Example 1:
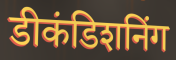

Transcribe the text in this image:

डीकंडिशनिंग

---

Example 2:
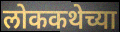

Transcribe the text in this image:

लोककथेच्या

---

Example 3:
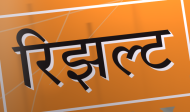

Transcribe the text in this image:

रिझल्ट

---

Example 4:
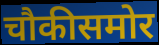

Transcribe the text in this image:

चौकीसमोर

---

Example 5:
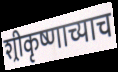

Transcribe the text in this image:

श्रीकृष्णाच्याच